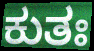
ಕುತಃ